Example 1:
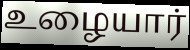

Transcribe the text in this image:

உழையார்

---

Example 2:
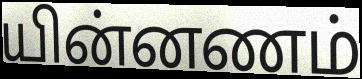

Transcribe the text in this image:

யின்னணம்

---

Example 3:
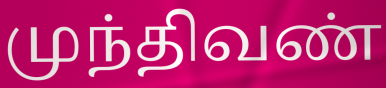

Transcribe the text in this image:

முந்திவண்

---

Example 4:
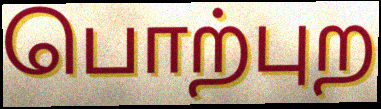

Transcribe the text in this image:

பொற்புற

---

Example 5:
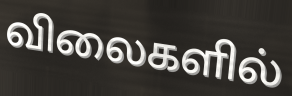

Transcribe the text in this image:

விலைகளில்